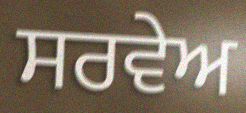
ਸਰਵੇਅ